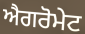
ਐਗਰੋਮੇਟ